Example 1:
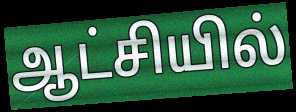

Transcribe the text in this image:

ஆட்சியில்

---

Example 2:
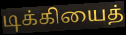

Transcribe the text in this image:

டிக்கியைத்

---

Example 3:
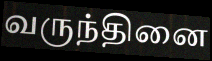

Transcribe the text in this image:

வருந்தினை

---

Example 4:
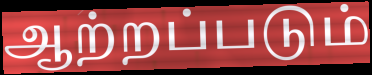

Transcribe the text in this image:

ஆற்றப்படும்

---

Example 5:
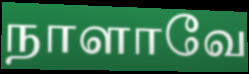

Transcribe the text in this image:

நாளாவே